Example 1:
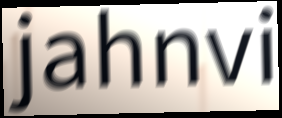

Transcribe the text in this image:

jahnvi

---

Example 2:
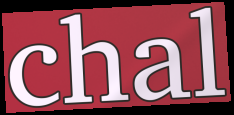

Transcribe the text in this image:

chal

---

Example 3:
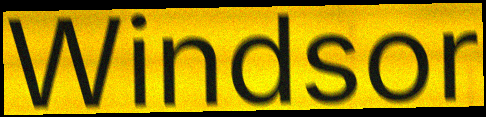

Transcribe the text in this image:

Windsor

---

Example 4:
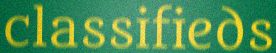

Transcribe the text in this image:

classifieds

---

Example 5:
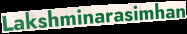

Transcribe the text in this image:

Lakshminarasimhan